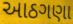
આઠગણા